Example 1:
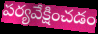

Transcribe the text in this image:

పర్యవేక్షించడం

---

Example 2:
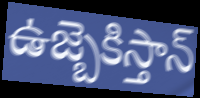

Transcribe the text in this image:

ఉజ్బెకిస్తాన్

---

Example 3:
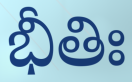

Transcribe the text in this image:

భీతిః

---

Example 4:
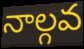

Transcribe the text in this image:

నాల్గవ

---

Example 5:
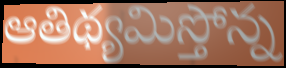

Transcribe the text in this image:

ఆతిథ్యమిస్తోన్న